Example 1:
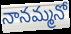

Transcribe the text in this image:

నానమ్మనో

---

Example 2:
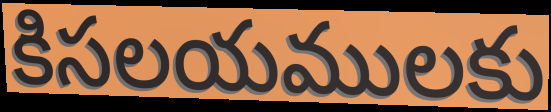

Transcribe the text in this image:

కిసలయములకు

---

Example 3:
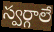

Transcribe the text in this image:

స్వర్గాలే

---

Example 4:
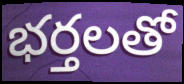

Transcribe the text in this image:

భర్తలతో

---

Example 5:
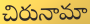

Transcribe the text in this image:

చిరునామా